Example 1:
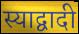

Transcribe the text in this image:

स्याद्वादी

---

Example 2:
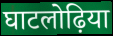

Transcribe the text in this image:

घाटलोढ़िया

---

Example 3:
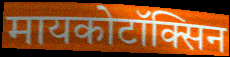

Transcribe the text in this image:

मायकोटॉक्सिन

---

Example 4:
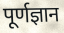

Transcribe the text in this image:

पूर्णज्ञान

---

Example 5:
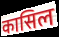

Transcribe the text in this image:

कासिल